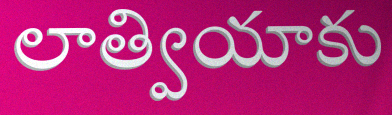
లాత్వియాకు